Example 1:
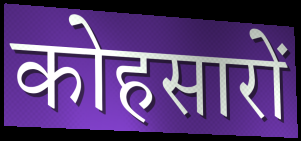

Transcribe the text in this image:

कोहसारों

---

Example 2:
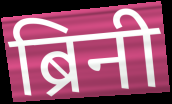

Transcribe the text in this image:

ब्रिनी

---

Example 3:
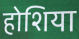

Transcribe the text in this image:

होशिया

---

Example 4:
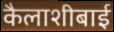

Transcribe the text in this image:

कैलाशीबाई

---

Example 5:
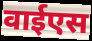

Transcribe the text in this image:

वाईएस